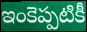
ఇంకెప్పటికీ